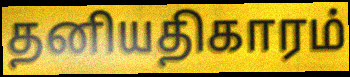
தனியதிகாரம்